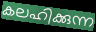
കലഹിക്കുന്ന